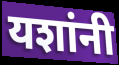
यशांनी